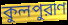
কুলপুরাণ